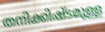
തനിക്കിഷ്ടമുള്ള